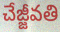
చేజ్జీవతి